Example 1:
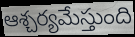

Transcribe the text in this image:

ఆశ్చర్యమేస్తుంది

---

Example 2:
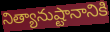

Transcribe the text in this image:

నిత్యానుష్టానానికి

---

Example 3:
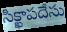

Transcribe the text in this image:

సిక్ఖాపదేసు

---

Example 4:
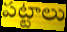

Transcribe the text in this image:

పట్టాలు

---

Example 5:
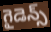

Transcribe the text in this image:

గైడెన్స్